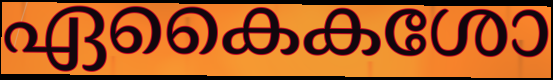
ഏകൈകശോ